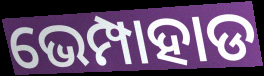
ଭେମ୍ପାହାଡ